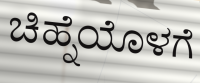
ಚಿಹ್ನೆಯೊಳಗೆ